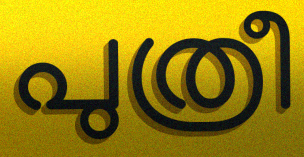
പുത്രീ